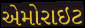
એમોરાઇટ